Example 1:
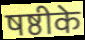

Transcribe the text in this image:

षष्ठीके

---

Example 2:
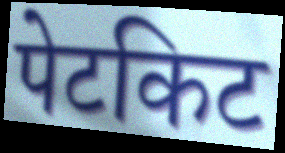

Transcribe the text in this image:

पेटकिट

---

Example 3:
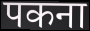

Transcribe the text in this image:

पकना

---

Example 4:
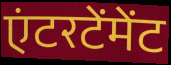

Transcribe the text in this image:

एंटरटेंमेंट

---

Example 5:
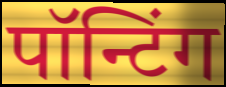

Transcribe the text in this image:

पॉन्टिंग